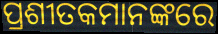
ପ୍ରଶୀତକମାନଙ୍କରେ